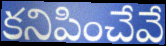
కనిపించేవే